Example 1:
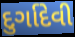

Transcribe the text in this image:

દુર્ગાદેવી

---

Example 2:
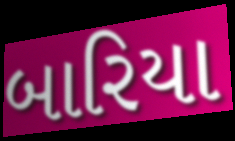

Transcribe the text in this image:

બારિયા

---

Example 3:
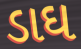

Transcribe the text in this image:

ડાઘ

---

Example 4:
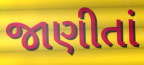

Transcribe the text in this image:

જાણીતાં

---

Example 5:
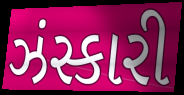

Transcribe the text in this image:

ઝંસ્કારી